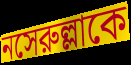
নসেরুল্লাকে